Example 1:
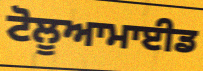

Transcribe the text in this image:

ਟੋਲੂਆਮਾਈਡ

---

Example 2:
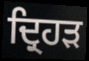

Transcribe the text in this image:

ਦ੍ਰਿਹੜ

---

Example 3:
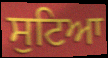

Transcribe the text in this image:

ਸੁਟਿਆ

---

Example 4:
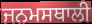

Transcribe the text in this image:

ਜਨਮਸਥਾਲੀ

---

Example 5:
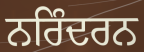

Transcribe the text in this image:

ਨਰਿੰਦਰਨ